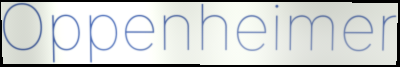
Oppenheimer